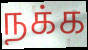
நக்க